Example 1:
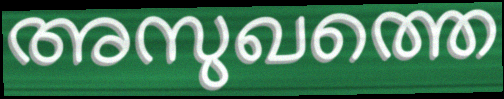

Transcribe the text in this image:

അസുഖത്തെ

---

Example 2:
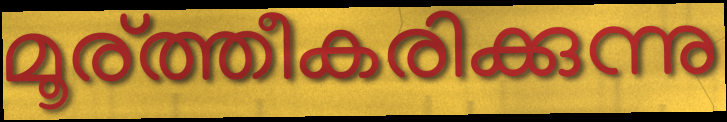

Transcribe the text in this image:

മൂര്ത്തീകരിക്കുന്നു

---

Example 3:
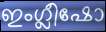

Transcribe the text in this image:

ഇംഗ്ലീഷോ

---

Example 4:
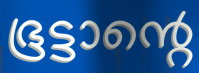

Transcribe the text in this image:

ഭൂട്ടാന്റെ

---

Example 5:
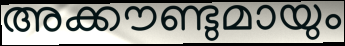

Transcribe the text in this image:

അക്കൗണ്ടുമായും